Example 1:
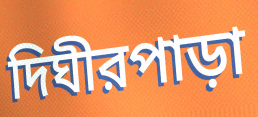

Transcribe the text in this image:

দিঘীরপাড়া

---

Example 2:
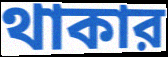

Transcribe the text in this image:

থাকার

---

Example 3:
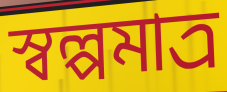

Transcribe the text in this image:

স্বল্পমাত্র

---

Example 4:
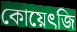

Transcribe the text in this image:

কোয়েৎজি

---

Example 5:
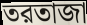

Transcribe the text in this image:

তরতাজা